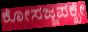
ಕೋಸಜ್ಜಪಕ್ಖೇ